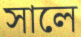
সালে